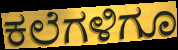
ಕಲೆಗಳಿಗೂ